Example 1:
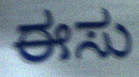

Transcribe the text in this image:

ಈಸು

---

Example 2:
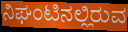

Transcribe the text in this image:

ನಿಘಂಟಿನಲ್ಲಿರುವ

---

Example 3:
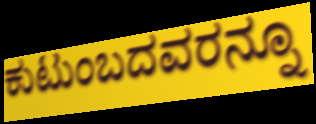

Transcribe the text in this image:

ಕುಟುಂಬದವರನ್ನೂ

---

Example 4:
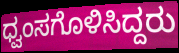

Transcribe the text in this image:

ಧ್ವಂಸಗೊಳಿಸಿದ್ದರು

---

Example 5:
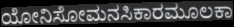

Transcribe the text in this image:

ಯೋನಿಸೋಮನಸಿಕಾರಮೂಲಕಾ